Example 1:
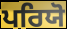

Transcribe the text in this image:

ਪਰਿਯੋ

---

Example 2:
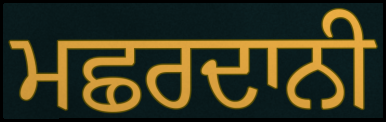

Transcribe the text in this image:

ਮਛਰਦਾਨੀ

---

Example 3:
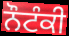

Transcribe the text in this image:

ਨੌਟੰਕੀ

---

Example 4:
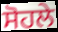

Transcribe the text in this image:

ਸੋਹਲੇ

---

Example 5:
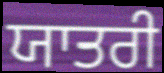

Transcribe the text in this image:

ਯਾਤਰੀ